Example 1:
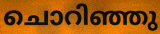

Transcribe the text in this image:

ചൊറിഞ്ഞു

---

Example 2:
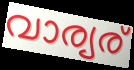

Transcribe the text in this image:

വാര്യര്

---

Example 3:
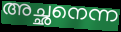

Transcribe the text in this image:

അച്ഛനെന്ന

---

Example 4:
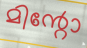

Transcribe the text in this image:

മിന്റോ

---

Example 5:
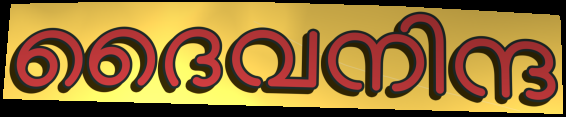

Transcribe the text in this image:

ദൈവനിന്ദ